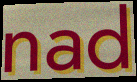
nad